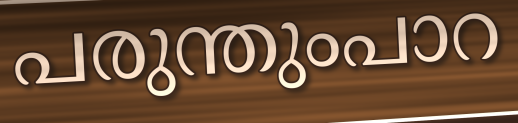
പരുന്തുംപാറ